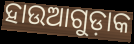
ହାଉଆଗୁଡ଼ାକ